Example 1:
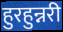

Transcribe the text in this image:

हुरहुन्नरी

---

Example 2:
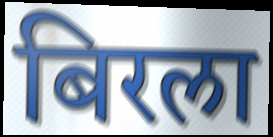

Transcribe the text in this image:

बिरला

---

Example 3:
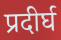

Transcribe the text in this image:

प्रदीर्घ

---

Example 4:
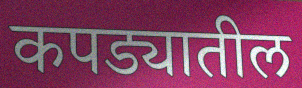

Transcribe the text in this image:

कपड्यातील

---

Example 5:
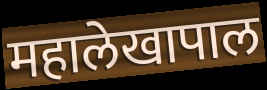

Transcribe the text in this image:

महालेखापाल